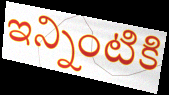
ఇన్నింటికి